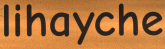
lihayche